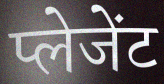
प्लेजेंट